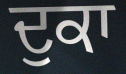
ਦੁਕਾ